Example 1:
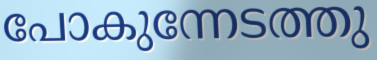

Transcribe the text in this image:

പോകുന്നേടത്തു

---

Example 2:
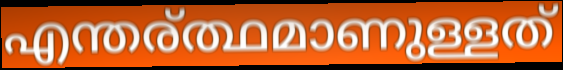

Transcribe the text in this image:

എന്തര്ത്ഥമാണുള്ളത്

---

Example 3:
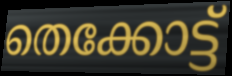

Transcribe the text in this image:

തെക്കോട്ട്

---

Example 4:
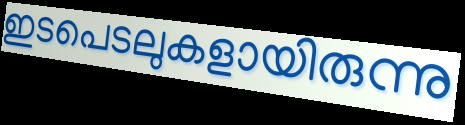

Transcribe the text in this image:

ഇടപെടലുകളായിരുന്നു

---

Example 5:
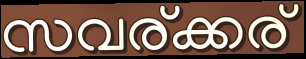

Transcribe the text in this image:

സവര്ക്കര്